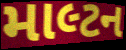
માલ્ટન